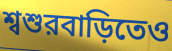
শ্বশুরবাড়িতেও